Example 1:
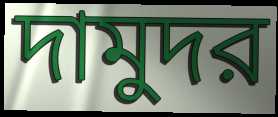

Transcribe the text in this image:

দামুদর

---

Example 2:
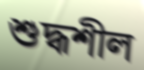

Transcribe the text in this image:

শুদ্ধশীল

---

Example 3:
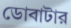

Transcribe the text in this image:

ডোবাটার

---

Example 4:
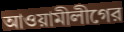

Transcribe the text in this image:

আওয়ামীলীগের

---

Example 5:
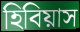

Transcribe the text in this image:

হিবিয়াস